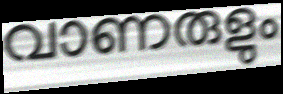
വാണരുളും